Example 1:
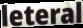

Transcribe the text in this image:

leteral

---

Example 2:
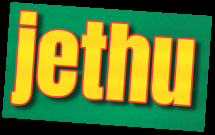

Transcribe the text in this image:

jethu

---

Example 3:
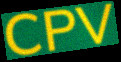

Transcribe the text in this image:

CPV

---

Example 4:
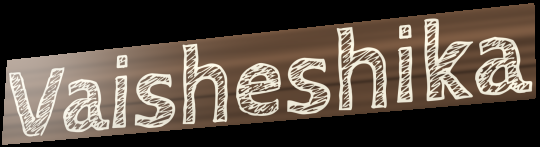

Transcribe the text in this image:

Vaisheshika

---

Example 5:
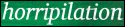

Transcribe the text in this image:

horripilation